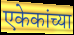
एकेकांच्या